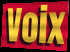
Voix